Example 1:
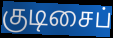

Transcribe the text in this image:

குடிசைப்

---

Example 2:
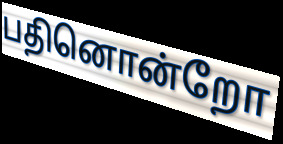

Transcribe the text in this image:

பதினொன்றோ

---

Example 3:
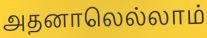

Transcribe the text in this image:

அதனாலெல்லாம்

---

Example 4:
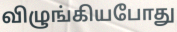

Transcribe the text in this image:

விழுங்கியபோது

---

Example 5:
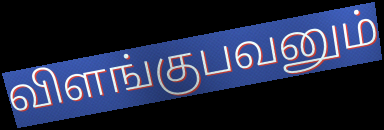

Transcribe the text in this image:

விளங்குபவனும்